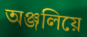
অঞ্জলিয়ে